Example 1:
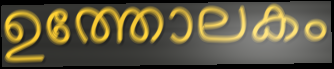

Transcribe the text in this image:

ഉത്തോലകം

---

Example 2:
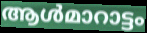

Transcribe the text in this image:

ആൾമാറാട്ടം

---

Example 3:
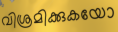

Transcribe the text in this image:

വിശ്രമിക്കുകയോ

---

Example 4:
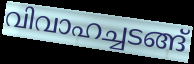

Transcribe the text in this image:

വിവാഹച്ചടങ്ങ്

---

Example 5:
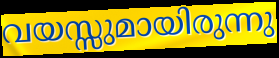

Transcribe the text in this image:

വയസ്സുമായിരുന്നു